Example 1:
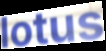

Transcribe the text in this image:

lotus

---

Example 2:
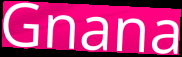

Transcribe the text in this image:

Gnana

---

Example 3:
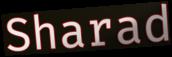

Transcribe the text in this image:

Sharad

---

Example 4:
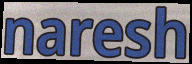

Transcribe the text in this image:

naresh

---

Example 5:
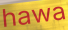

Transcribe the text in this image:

hawa